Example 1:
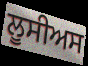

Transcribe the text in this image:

ਲੂਸੀਅਸ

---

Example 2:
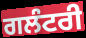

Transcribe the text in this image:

ਗਲੰਟਰੀ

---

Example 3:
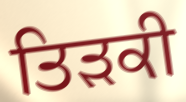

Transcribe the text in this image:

ਤਿੜਕੀ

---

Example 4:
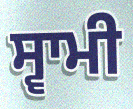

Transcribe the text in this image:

ਸ੍ਵਾਮੀ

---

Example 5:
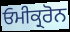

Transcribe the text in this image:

ਓਮੀਕ੍ਰਰੋਨ